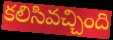
కలిసివచ్చింది